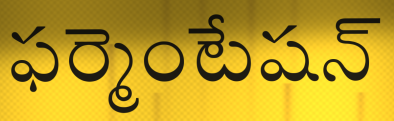
ఫర్మెంటేషన్